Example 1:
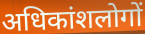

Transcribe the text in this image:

अधिकांशलोगों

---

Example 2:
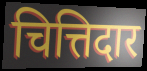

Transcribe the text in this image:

चित्तिदार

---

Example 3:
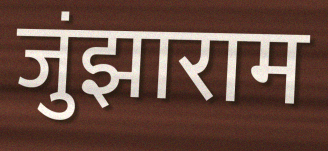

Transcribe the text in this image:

जुंझाराम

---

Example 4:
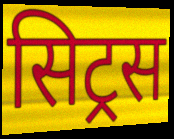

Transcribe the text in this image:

सिट्रस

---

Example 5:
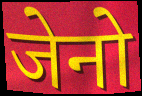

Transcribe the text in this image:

जेनो